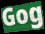
Gog